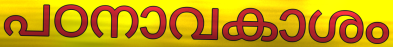
പഠനാവകാശം